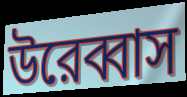
উরেব্বাস